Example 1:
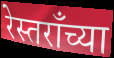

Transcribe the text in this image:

रेस्तरॉंच्या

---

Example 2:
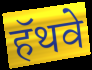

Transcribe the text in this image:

हॅथवे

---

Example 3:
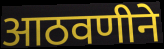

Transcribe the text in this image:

आठवणीने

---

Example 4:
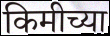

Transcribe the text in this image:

किमीच्या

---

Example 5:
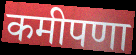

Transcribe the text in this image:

कमीपणा